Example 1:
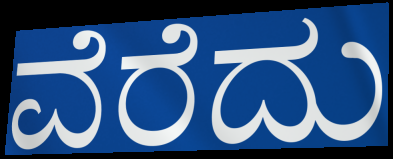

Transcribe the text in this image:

ವೆರೆದು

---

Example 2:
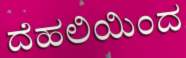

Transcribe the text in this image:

ದೆಹಲಿಯಿಂದ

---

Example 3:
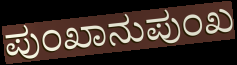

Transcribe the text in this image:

ಪುಂಖಾನುಪುಂಖ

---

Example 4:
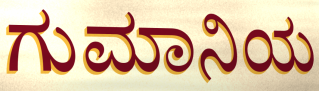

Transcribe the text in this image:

ಗುಮಾನಿಯ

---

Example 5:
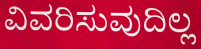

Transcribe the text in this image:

ವಿವರಿಸುವುದಿಲ್ಲ